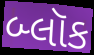
બ્લૉક